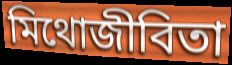
মিথোজীবিতা